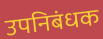
उपनिबंधक